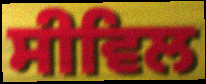
ਸੀਵਿਲ